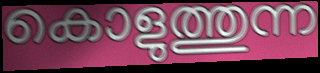
കൊളുത്തുന്ന